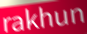
rakhun